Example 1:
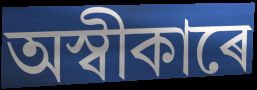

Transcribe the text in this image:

অস্বীকাৰে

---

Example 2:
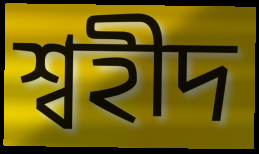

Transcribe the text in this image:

শ্বহীদ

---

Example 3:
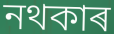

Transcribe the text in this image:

নথকাৰ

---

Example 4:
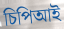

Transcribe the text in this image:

চিপিআই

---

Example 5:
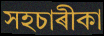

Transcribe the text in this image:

সহচাৰীকা